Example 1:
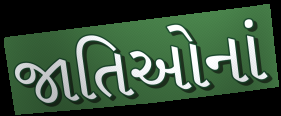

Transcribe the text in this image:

જાતિઓનાં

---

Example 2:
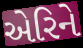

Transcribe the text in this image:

એરિને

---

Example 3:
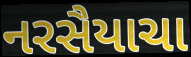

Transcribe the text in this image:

નરસૈયાચા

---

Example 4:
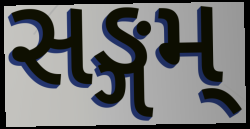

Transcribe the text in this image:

સઙ્ગમ્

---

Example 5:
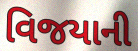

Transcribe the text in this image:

વિજયાની